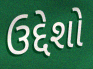
ઉદ્દેશો